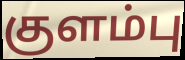
குளம்பு